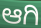
ಆಗಿ